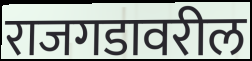
राजगडावरील